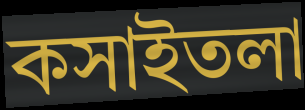
কসাইতলা